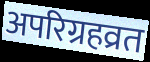
अपरिग्रहव्रत